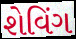
શેવિંગ